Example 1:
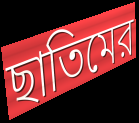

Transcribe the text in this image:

ছাতিমের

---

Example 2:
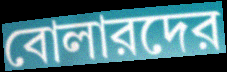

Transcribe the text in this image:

বোলারদের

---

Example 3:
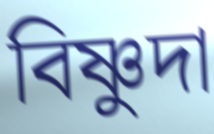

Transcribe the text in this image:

বিষ্ণুদা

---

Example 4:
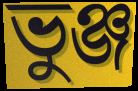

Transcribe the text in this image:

ভুঞ্জ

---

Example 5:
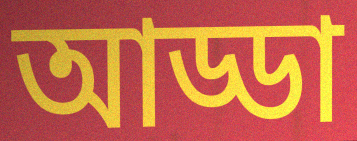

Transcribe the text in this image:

আড্ডা